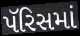
પૅરિસમાં